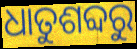
ଧାତୁଶବ୍ଦରୁ